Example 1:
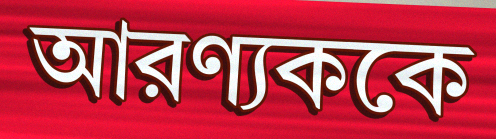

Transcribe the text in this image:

আরণ্যককে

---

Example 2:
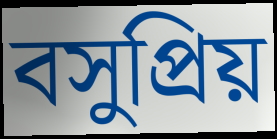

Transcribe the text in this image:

বসুপ্রিয়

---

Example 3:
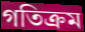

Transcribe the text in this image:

গতিক্রম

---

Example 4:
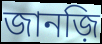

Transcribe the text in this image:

জানজ়ি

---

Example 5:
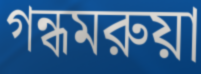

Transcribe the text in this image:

গন্ধমরুয়া